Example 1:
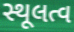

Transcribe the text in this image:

સ્થૂલત્વ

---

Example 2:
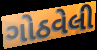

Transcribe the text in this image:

ગોઠવેલી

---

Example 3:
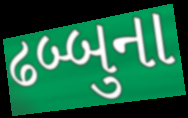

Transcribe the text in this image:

ઢબ્બુના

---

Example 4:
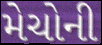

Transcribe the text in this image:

મેચોની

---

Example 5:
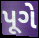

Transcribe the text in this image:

પૂગે